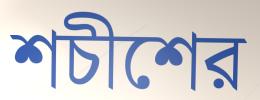
শচীশের